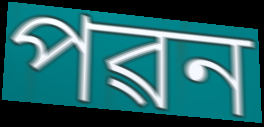
পৱন